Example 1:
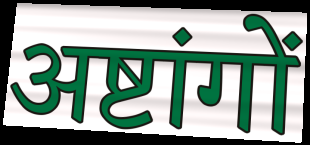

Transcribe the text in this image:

अष्टांगों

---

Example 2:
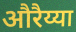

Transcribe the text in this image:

औरैय्या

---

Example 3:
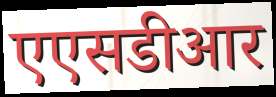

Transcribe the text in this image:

एएसडीआर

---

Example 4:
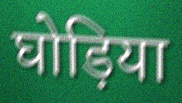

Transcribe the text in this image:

घोड़िया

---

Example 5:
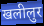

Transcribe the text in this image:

खलीलुर